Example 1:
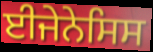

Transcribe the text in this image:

ਈਜੇਨੇਸਿਸ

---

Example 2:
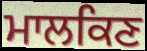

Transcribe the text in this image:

ਮਾਲਕਿਣ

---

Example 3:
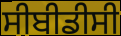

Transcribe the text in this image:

ਸੀਬੀਡੀਸੀ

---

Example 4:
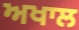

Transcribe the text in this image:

ਅਖਾਲ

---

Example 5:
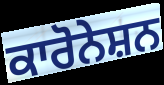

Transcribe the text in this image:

ਕਾਰੋਨੇਸ਼ਨ